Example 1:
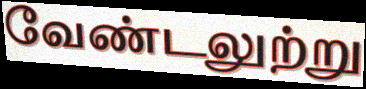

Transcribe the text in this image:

வேண்டலுற்று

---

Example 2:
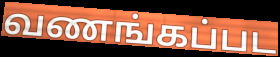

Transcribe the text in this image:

வணங்கப்பட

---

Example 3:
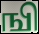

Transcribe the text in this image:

ஙி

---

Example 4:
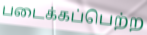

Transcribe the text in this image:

படைக்கப்பெற்ற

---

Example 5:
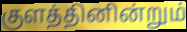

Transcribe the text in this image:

குளத்தினின்றும்